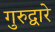
गुरुद्वारे